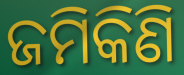
ଜମିକିଣି